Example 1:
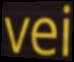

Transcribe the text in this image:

vei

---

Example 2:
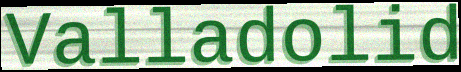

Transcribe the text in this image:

Valladolid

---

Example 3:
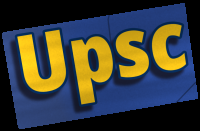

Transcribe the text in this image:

Upsc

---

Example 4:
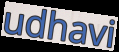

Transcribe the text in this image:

udhavi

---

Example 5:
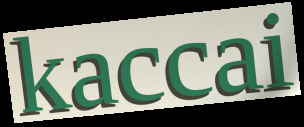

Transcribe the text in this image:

kaccai